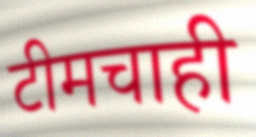
टीमचाही